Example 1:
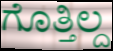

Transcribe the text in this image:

ಗೊತ್ತಿಲ್ದ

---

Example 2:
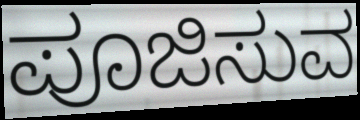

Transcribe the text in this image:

ಪೂಜಿಸುವ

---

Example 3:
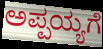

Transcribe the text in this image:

ಅಪ್ಪಯ್ಯಗೆ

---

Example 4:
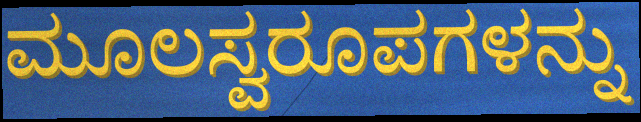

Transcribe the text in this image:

ಮೂಲಸ್ವರೂಪಗಳನ್ನು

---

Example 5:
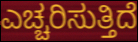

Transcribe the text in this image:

ಎಚ್ಚರಿಸುತ್ತಿದೆ